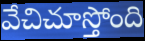
వేచిచూస్తోంది